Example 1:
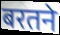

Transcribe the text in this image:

बरतने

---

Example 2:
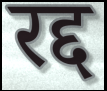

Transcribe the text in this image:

रद्द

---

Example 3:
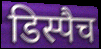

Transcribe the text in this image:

डिस्पैच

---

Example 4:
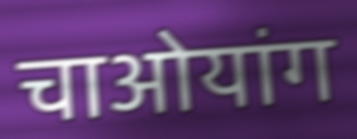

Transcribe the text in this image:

चाओयांग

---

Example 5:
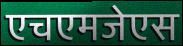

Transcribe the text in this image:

एचएमजेएस